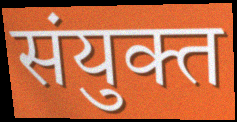
संयुक्‍त